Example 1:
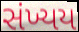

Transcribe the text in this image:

સંખ્યય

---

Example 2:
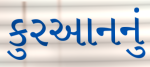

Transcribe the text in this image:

કુરઆનનું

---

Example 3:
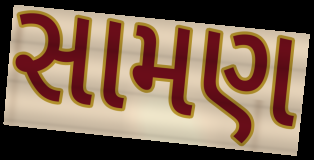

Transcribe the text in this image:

સામણ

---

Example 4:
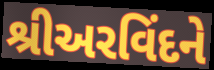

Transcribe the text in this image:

શ્રીઅરવિંદને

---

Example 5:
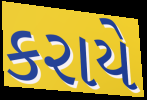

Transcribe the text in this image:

કરાયે